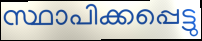
സ്ഥാപിക്കപ്പെട്ടു